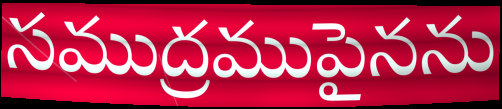
సముద్రముపైనను